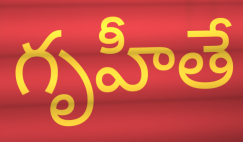
గృహీతే